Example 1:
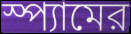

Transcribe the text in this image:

স্প্যামের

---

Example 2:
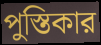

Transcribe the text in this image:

পুস্তিকার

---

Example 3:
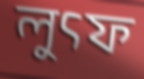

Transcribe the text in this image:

লুৎফ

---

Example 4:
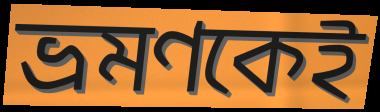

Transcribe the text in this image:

ভ্রমণকেই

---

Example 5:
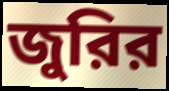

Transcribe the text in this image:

জুরির